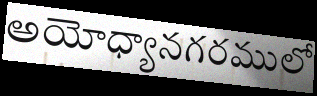
అయోధ్యానగరములో